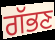
ਗੱਭਣ